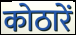
कोठारें